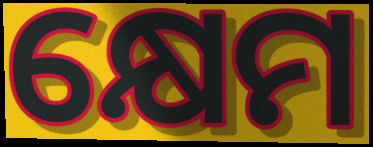
କ୍ଷେମ